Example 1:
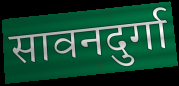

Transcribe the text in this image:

सावनदुर्गा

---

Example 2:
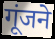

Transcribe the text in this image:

गूंजने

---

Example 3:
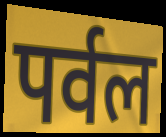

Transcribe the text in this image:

पर्वल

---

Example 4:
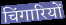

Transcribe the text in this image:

चिंगारियों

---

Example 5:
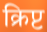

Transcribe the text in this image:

क्रिप्ट